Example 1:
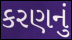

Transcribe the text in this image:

કરણનું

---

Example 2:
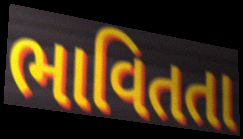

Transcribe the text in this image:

ભાવિતતા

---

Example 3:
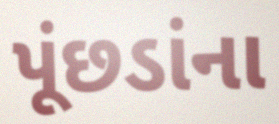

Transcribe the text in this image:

પૂંછડાંના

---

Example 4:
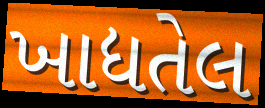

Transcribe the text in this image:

ખાદ્યતેલ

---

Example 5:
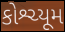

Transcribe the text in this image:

કોશ્ચ્યૂમ